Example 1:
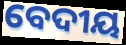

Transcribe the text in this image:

ବେଦୀୟ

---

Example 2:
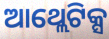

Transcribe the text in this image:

ଆଥ୍ଲେଟିକ୍ସ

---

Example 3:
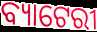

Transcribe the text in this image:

ବ୍ୟାଟେରୀ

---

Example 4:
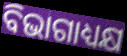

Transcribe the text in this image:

ବିଭାଗାଧ୍ୟକ୍ଷ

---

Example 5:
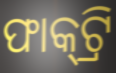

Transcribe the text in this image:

ଫାକ୍‍ଟ୍ରି